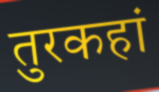
तुरकहां